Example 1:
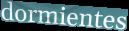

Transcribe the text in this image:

dormientes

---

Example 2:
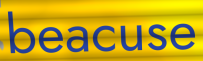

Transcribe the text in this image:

beacuse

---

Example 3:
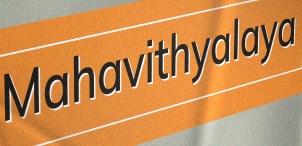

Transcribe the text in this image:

Mahavithyalaya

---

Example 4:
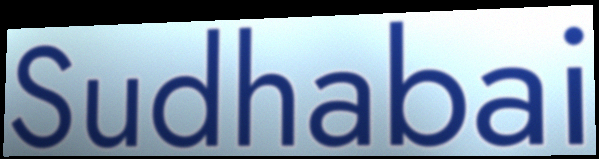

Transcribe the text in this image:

Sudhabai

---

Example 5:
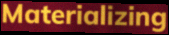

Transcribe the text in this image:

Materializing